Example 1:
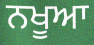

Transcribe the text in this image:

ਨਖੂਆ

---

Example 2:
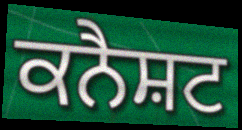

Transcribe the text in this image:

ਕਨੈਸ਼ਟ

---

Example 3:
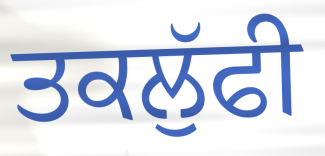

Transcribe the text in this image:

ਤਕਲੁੱਫੀ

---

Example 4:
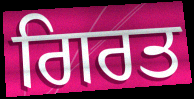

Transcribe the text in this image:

ਗਿਰਤ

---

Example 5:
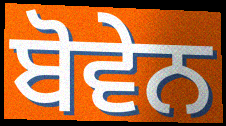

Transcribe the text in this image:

ਬੋਵੇਨ